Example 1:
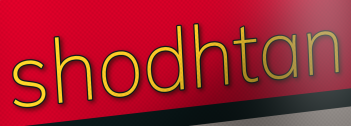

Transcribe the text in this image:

shodhtan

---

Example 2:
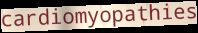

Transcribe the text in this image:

cardiomyopathies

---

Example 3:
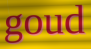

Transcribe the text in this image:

goud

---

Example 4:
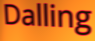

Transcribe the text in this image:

Dalling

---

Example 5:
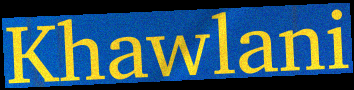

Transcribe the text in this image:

Khawlani